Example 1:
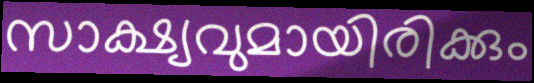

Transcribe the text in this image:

സാക്ഷ്യവുമായിരിക്കും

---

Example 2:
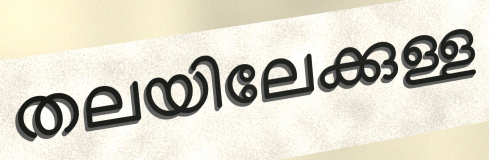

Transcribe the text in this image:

തലയിലേക്കുള്ള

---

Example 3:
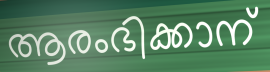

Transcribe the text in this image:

ആരംഭിക്കാന്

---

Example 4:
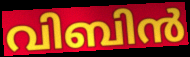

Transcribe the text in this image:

വിബിൻ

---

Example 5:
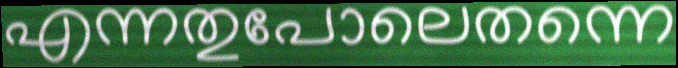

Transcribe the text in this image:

എന്നതുപോലെതന്നെ